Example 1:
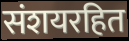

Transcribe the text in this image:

संशयरहित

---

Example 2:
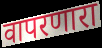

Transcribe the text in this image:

वापरणारा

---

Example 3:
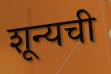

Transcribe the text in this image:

शून्यची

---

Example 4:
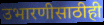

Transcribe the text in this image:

उभारणीसाठीही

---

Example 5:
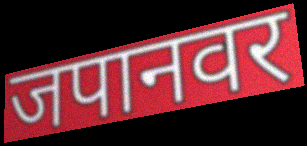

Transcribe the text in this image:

जपानवर